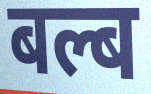
बल्ब